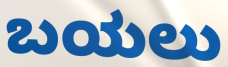
ಬಯಲು